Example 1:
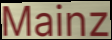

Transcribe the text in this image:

Mainz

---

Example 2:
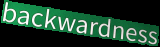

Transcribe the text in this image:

backwardness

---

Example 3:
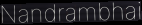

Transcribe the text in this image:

Nandrambhai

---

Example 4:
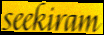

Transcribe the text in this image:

seekiram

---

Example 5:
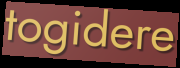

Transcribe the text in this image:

togidere